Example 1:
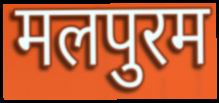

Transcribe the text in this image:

मलपुरम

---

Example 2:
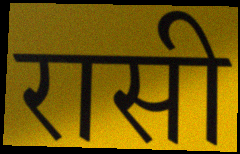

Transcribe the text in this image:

रासी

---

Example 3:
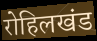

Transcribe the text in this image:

रोहिलखंड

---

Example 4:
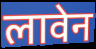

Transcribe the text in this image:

लावेन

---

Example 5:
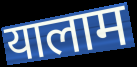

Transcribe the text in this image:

यालाम